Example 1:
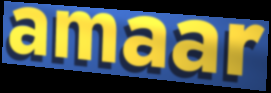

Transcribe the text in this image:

amaar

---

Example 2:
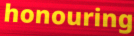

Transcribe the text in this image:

honouring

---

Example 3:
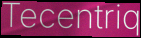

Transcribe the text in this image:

Tecentriq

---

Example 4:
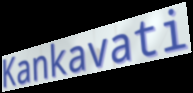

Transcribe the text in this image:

Kankavati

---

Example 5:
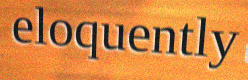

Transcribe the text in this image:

eloquently